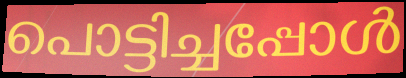
പൊട്ടിച്ചപ്പോൾ